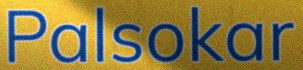
Palsokar